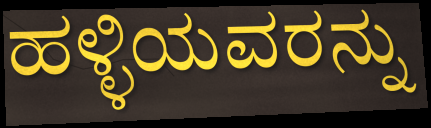
ಹಳ್ಳಿಯವರನ್ನು